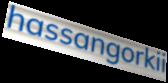
hassangorkii